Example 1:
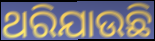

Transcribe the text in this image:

ଥରିଯାଉଛି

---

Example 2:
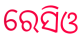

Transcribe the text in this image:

ରେସିଓ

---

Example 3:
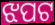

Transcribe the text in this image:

ଝପଟ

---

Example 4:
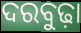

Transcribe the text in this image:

ଦରବୁଢ଼ା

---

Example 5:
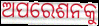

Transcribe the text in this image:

ଅପରେଶନକୁ